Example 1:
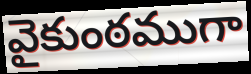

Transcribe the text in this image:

వైకుంఠముగా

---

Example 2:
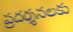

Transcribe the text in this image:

ప్రదర్శనలకు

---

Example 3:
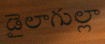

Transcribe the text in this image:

డైలాగుల్లా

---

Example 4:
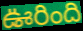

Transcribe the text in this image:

ఊరింది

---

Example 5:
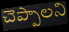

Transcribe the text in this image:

చెప్పాలని